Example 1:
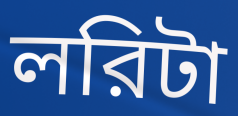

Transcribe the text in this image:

লরিটা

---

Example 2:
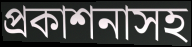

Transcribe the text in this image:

প্রকাশনাসহ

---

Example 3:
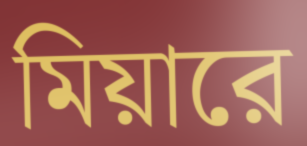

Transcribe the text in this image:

মিয়ারে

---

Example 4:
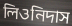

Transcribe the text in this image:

লিওনিদাস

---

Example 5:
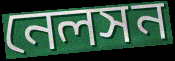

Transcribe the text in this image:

নেলসন